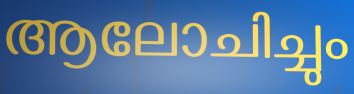
ആലോചിച്ചും